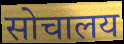
सोचालय